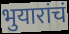
भुयारांचं